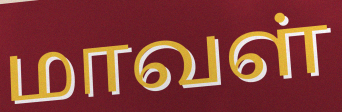
மாவள்